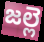
జల్లె